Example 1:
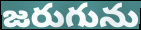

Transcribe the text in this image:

జరుగును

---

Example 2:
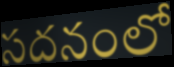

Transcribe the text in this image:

సదనంలో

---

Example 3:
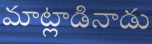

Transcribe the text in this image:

మాట్లాడినాడు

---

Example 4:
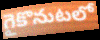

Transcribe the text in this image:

గైకొనుటలో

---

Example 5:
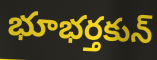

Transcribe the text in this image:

భూభర్తకున్